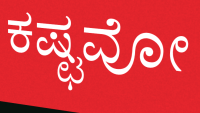
ಕಷ್ಟವೋ